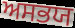
ਅਸਭਯ